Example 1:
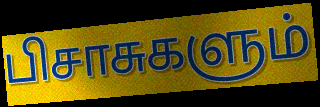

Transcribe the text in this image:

பிசாசுகளும்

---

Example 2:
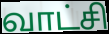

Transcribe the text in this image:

வாட்சி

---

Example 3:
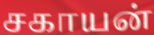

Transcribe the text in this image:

சகாயன்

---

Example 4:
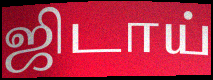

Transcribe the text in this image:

ஜிடாய்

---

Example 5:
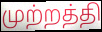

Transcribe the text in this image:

முற்றத்தி